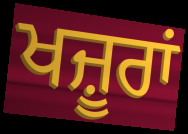
ਖਜ਼ੂਰਾਂ